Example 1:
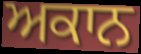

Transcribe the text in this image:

ਅਕਾਨ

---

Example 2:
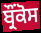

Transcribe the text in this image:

ਬ੍ਰੌਂਕੋਸ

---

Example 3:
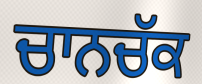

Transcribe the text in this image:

ਚਾਨਚੱਕ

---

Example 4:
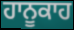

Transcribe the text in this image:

ਹਾਨੂਕਾਹ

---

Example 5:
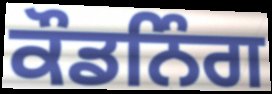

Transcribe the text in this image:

ਕੌਡਨਿੰਗ